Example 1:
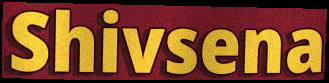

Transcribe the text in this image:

Shivsena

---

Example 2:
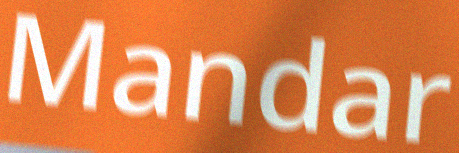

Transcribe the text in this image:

Mandar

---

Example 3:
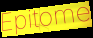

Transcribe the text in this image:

Epitome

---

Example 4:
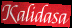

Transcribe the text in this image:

Kalidasa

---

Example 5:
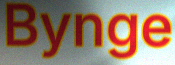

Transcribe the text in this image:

Bynge